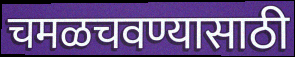
चमळचवण्यासाठी